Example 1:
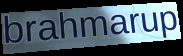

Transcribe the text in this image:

brahmarup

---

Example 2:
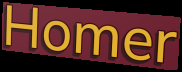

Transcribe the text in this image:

Homer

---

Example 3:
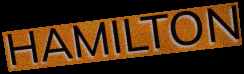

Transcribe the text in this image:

HAMILTON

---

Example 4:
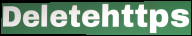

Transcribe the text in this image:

Deletehttps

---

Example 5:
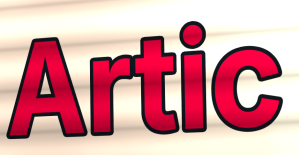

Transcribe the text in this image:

Artic